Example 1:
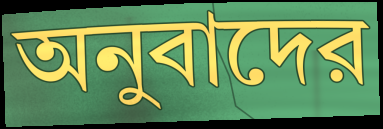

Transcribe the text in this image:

অনুবাদের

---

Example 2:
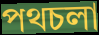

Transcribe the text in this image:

পথচলা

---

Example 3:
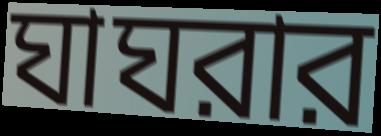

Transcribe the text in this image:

ঘাঘরার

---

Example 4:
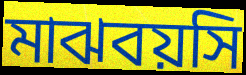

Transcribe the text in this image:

মাঝবয়সি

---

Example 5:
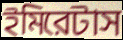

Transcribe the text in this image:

ইমিরেটাস